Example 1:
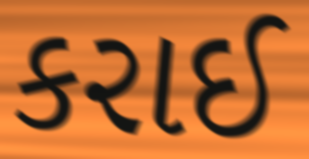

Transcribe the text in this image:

કરાઈ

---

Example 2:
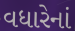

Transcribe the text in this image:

વધારેનાં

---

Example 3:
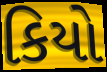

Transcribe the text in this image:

કિયો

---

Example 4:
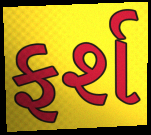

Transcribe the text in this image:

ફર્શ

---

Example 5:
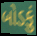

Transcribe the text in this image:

બોડકું